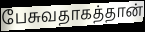
பேசுவதாகத்தான்